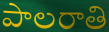
పాలరాతి